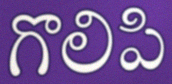
గొలిపి